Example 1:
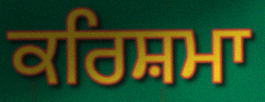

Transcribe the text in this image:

ਕਰਿਸ਼ਮਾ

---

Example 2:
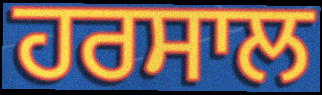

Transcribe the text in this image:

ਹਰਸਾਲ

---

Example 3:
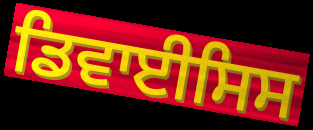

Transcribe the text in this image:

ਡਿਵਾਈਸਿਸ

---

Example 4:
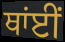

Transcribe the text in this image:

ਥਾਂਈਂ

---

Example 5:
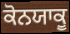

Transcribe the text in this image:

ਕੋਨਯਾਕੂ